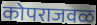
कोपराजवळ